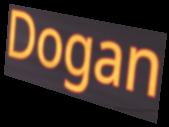
Dogan